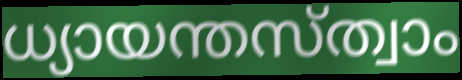
ധ്യായന്തസ്ത്വാം